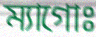
ম্যাগোঃ